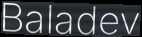
Baladev